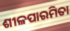
ଶୀଳପାରମିତା